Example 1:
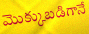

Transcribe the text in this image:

మొక్కుబడిగానే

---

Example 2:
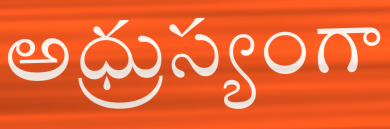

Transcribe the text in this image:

అధ్రుస్యంగా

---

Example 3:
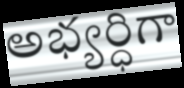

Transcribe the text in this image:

అభ్యర్ధిగా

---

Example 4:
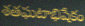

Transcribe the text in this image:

శతఘటాభిషేకం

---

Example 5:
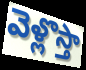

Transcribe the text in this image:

వెళ్లొస్తా